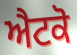
ਐਟਕੋ